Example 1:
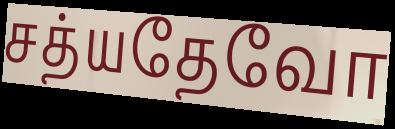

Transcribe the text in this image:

சத்யதேவோ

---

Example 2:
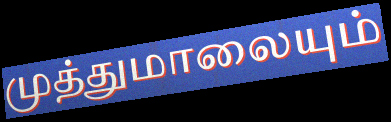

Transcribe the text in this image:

முத்துமாலையும்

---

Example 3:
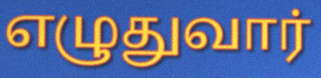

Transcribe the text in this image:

எழுதுவார்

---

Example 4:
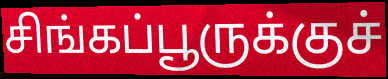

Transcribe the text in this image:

சிங்கப்பூருக்குச்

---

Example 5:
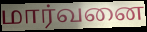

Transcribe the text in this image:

மார்வனை